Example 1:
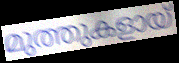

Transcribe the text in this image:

മുത്തുകളായ്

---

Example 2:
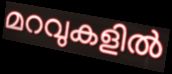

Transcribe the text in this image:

മറവുകളിൽ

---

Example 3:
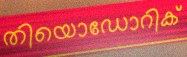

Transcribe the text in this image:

തിയൊഡോറിക്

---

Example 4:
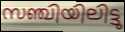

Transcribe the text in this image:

സഞ്ചിയിലിട്ടു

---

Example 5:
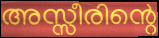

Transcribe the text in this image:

അസ്സീരിന്റെ